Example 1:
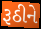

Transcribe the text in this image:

રૂઠીને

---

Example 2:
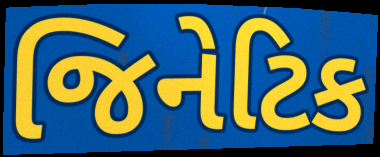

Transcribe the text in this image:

જિનેટિક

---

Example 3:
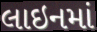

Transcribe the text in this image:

લાઇનમાં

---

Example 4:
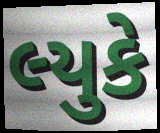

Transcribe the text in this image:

લ્યુકે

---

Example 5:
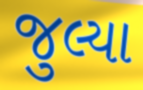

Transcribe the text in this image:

જુલ્યા